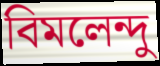
বিমলেন্দু